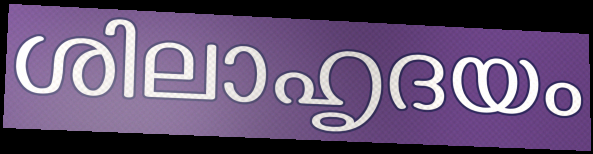
ശിലാഹൃദയം